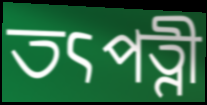
তৎপত্নী